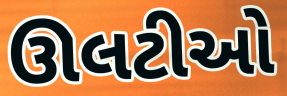
ઊલટીઓ